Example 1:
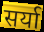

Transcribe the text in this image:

सर्या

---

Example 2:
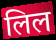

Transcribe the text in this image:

लिल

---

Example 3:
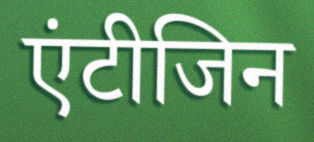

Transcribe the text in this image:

एंटीजिन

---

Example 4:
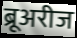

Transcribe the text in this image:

ब्रूअरीज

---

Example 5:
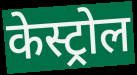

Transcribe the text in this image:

केस्ट्रोल